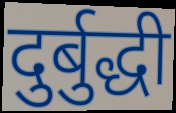
दुर्बुद्धी